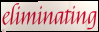
eliminating